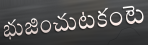
భుజించుటకంటె